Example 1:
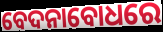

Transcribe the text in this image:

ବେଦନାବୋଧରେ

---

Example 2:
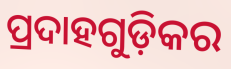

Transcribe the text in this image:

ପ୍ରଦାହଗୁଡ଼ିକର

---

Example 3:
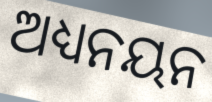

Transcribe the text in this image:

ଅଧ୍ୟନୟନ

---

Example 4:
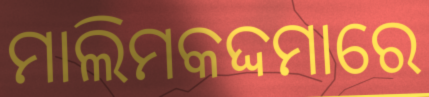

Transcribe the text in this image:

ମାଲିମକଦ୍ଦମାରେ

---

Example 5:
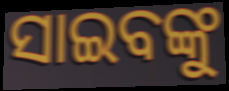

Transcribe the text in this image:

ସାଇବଙ୍କୁ